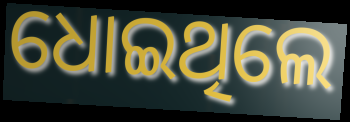
ଧୋଇଥିଲେ